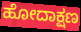
ಹೋದಾಕ್ಷಣ